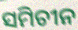
ସମିଚୀନ